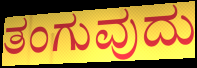
ತಂಗುವುದು